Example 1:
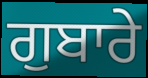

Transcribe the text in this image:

ਗੁਬਾਰੇ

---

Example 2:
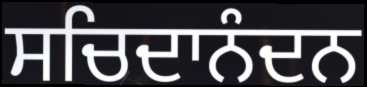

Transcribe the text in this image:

ਸਚਿਦਾਨੰਦਨ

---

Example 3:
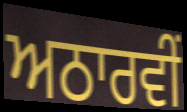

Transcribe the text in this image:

ਅਠਾਰਵੀਂ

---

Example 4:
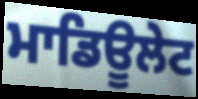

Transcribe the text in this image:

ਮਾਡਿਊਲੇਟ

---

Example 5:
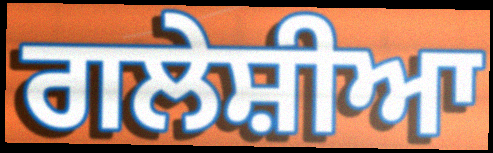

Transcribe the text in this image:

ਗਲੇਸ਼ੀਆ